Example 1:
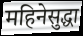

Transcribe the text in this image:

महिनेसुद्धा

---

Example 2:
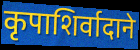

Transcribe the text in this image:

कृपाशिर्वादाने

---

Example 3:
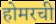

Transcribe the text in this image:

होमरची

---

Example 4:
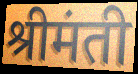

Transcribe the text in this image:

श्रीमंती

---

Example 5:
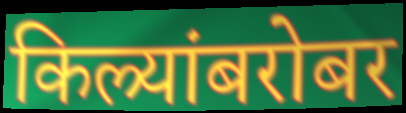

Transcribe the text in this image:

किल्यांबरोबर